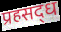
प्रहसद्ध